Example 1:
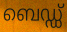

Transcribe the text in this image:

ബെഡ്ഡ്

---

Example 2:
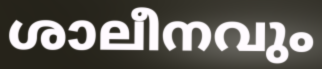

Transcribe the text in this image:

ശാലീനവും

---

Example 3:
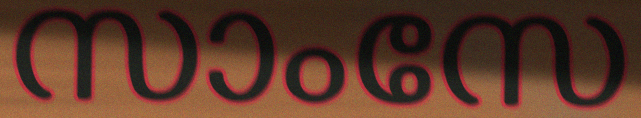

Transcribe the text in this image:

സാംസേ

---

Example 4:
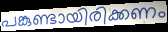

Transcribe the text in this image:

പങ്കുണ്ടായിരിക്കണം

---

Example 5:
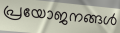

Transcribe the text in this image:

പ്രയോജനങ്ങൾ